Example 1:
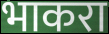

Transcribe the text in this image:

भाकरा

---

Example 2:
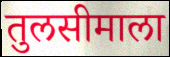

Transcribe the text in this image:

तुलसीमाला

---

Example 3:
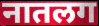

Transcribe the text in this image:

नातलग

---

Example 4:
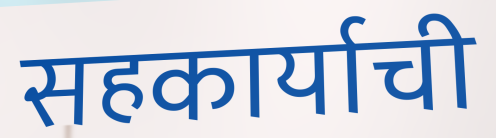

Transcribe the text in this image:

सहकार्याची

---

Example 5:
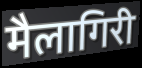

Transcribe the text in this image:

मैलागिरी